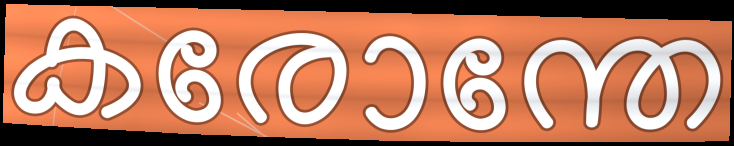
കരോന്തേ